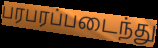
பரபரப்படைந்து